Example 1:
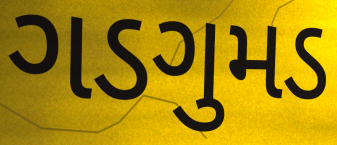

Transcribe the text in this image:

ગડગુમડ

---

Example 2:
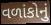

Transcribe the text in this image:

વળાંકોનું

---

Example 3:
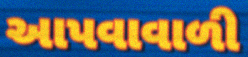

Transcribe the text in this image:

આપવાવાળી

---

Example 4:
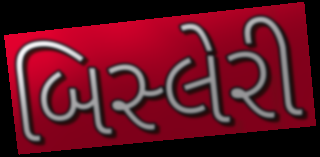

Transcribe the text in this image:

બિસ્લેરી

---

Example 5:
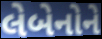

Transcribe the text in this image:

લેબેનોને